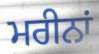
ਮਰੀਨਾਂ